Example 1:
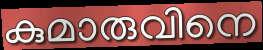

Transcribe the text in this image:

കുമാരുവിനെ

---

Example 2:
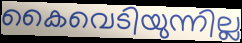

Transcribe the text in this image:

കൈവെടിയുന്നില്ല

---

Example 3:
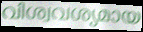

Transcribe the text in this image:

വിശ്വവശ്യമായ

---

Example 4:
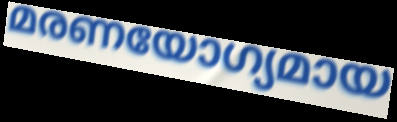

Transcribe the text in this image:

മരണയോഗ്യമായ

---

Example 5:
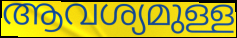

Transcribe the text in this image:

ആവശ്യമുള്ള